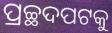
ପ୍ରଚ୍ଛଦପଟକୁ